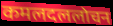
कमलदललोचन